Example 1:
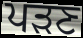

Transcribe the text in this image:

ਪੜਣ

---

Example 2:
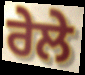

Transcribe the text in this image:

ਰੇਲੇ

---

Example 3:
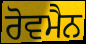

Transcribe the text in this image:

ਰੋਵਮੈਨ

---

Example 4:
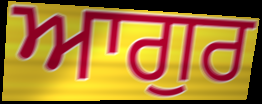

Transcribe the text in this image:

ਆਗੁਰ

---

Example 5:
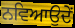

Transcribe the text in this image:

ਨਵਿਆਉਦੇਂ